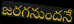
జరగనుందనే